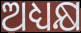
ଅଧ୍ୟକ୍ଷ